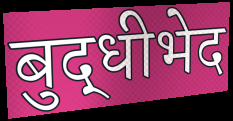
बुद्धीभेद